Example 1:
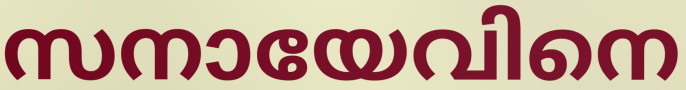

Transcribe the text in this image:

സനായേവിനെ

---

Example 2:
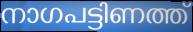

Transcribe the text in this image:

നാഗപട്ടിണത്ത്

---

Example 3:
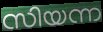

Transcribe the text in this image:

സിയന്ന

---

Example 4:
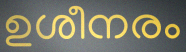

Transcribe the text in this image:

ഉശീനരം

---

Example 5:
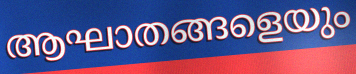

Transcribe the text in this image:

ആഘാതങ്ങളെയും